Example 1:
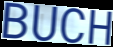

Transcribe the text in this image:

BUCH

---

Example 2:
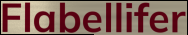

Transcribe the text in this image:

Flabellifer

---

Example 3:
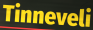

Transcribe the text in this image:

Tinneveli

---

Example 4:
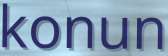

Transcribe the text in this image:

konun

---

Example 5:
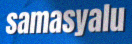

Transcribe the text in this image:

samasyalu